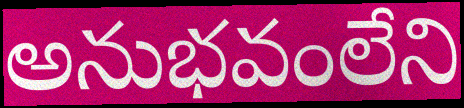
అనుభవంలేని